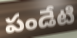
పండేటి